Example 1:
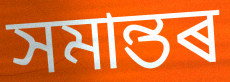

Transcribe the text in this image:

সমান্তৰ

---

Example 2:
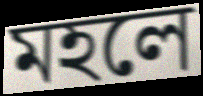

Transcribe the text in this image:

মহলে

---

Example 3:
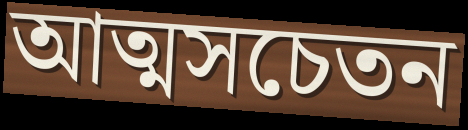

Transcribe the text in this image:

আত্মসচেতন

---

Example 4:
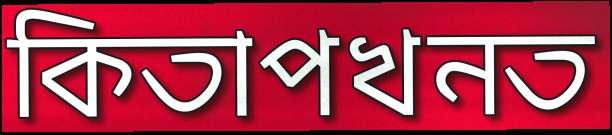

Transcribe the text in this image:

কিতাপখনত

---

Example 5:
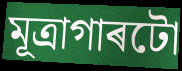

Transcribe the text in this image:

মূত্ৰাগাৰটো